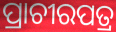
ପ୍ରାଚୀରପତ୍ର